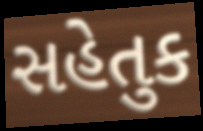
સહેતુક